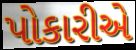
પોકારીએ